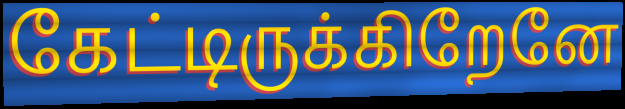
கேட்டிருக்கிறேனே